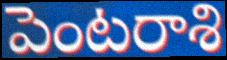
పెంటరాశి